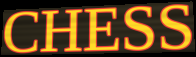
CHESS